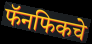
फॅनफिकचे